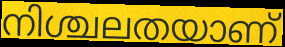
നിശ്ചലതയാണ്